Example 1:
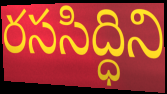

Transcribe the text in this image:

రససిద్ధిని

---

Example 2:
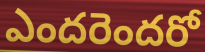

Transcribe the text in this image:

ఎందరెందరో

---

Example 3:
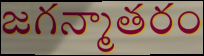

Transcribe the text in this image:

జగన్మాతరం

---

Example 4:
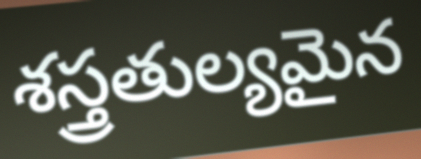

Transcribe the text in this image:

శస్త్రతుల్యమైన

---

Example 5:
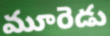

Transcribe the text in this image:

మూరెడు